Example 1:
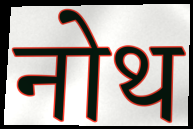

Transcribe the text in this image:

नोथ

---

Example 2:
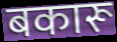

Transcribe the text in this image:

बकारू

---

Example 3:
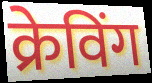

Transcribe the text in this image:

क्रेविंग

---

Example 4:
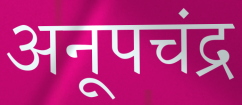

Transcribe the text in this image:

अनूपचंद्र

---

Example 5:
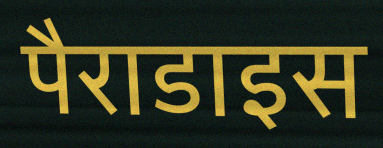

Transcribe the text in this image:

पैराडाइस